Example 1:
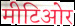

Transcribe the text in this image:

मीटिओर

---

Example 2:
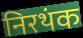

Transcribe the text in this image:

निरथंक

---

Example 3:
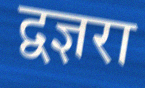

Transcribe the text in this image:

द्वज्ञरा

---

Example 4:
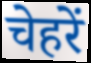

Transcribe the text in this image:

चेहरें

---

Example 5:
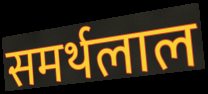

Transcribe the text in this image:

समर्थलाल